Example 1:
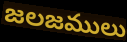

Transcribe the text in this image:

జలజములు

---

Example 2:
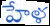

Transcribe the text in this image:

హేళ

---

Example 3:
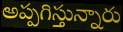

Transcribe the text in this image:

అప్పగిస్తున్నారు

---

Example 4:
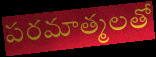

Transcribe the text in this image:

పరమాత్మలతో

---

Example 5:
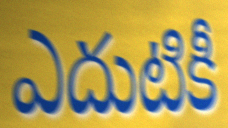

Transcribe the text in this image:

ఎదుటికీ